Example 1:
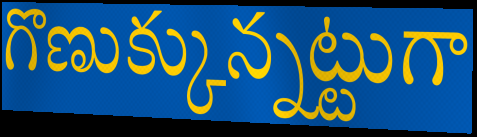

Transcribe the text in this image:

గొణుక్కున్నట్టుగా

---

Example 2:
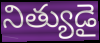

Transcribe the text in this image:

నిత్యుడై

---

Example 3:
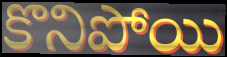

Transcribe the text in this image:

కొనిపోయి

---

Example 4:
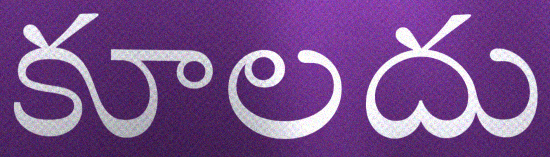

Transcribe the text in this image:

కూలదు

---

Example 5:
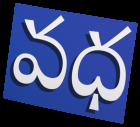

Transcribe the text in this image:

వధ